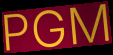
PGM